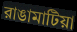
রাঙামাটিয়া